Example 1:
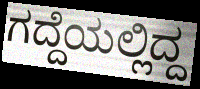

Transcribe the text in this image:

ಗದ್ದೆಯಲ್ಲಿದ್ದ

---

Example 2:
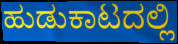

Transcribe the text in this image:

ಹುಡುಕಾಟದಲ್ಲಿ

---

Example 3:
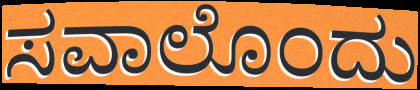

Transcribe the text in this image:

ಸವಾಲೊಂದು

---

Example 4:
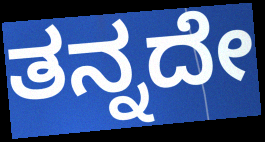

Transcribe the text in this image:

ತನ್ನದೇ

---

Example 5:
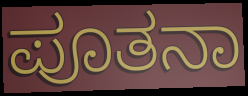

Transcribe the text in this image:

ಪೂತನಾ